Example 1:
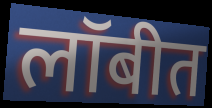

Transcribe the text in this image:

लॉबीत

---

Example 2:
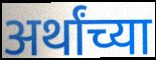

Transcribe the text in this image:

अर्थांच्या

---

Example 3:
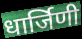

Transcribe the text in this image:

धार्जिणी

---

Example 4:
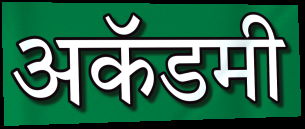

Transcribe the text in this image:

अकॅडमी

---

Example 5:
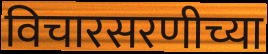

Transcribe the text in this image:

विचारसरणीच्या